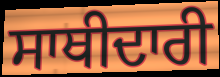
ਸਾਥੀਦਾਰੀ